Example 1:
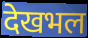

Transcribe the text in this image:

देखभल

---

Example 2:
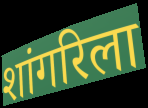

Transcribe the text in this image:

शांगरिला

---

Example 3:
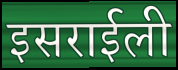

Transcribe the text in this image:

इसराईली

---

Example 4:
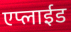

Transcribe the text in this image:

एप्लाईड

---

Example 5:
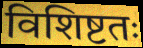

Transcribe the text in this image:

विशिष्टतः